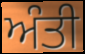
ਅੰਤੀ